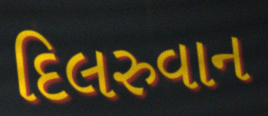
દિલરુવાન